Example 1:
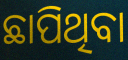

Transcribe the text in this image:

ଛାପିଥିବା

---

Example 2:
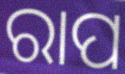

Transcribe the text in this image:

ରାପ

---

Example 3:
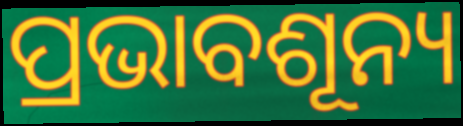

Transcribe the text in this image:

ପ୍ରଭାବଶୂନ୍ୟ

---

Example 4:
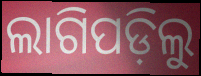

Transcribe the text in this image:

ଲାଗିପଡ଼ିଲୁ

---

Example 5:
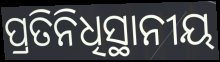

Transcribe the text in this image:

ପ୍ରତିନିଧିସ୍ଥାନୀୟ